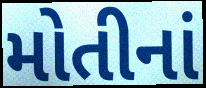
મોતીનાં